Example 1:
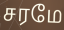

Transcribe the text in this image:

சரமே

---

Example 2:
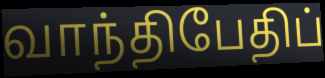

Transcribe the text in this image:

வாந்திபேதிப்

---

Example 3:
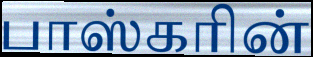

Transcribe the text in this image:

பாஸ்கரின்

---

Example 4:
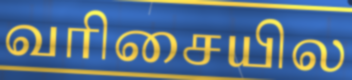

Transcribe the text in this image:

வரிசையில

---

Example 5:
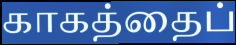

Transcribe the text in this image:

காகத்தைப்